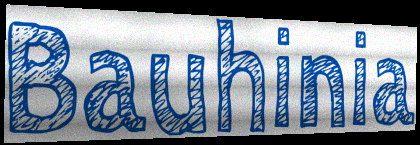
Bauhinia